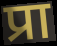
प्रा